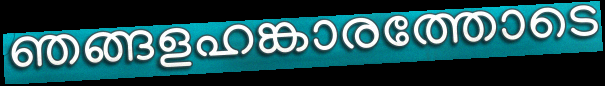
ഞങ്ങളഹങ്കാരത്തോടെ